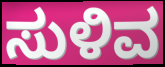
ಸುಳಿವ